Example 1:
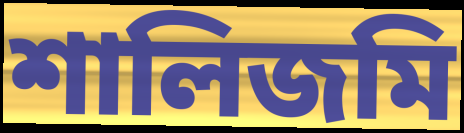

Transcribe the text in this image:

শালিজমি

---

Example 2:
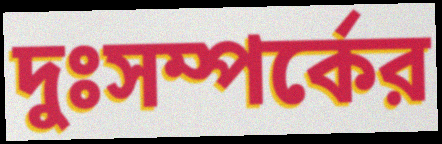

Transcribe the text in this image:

দুঃসম্পর্কের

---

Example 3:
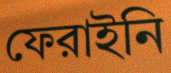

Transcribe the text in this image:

ফেরাইনি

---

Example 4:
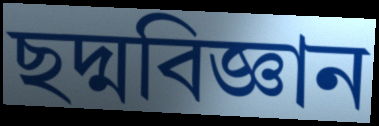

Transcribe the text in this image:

ছদ্মবিজ্ঞান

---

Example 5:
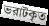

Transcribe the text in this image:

ভরাটকৃত